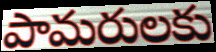
పామరులకు